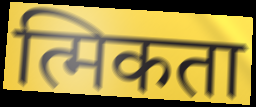
त्मिकता